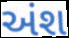
અંશ